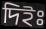
দিইঃ